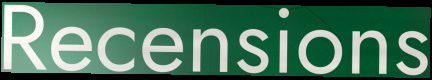
Recensions